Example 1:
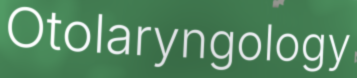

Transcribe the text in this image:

Otolaryngology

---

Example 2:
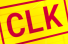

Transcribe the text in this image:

CLK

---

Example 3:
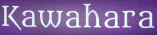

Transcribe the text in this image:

Kawahara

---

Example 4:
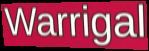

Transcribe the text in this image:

Warrigal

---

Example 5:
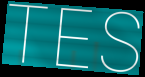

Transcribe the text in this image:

TES